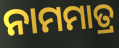
ନାମମାତ୍ର